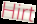
Hirt